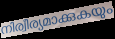
നിര്വീര്യമാക്കുകയും